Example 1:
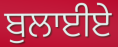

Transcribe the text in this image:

ਬੁਲਾਈਏ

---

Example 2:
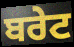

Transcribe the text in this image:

ਬਰੇਟ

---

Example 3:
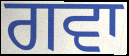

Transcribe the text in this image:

ਗਵਾ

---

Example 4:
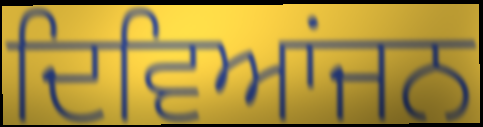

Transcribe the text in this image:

ਦਿਵਿਆਂਜਨ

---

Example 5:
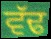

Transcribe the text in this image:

ਵੱਢ